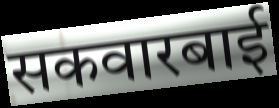
सकवारबाई